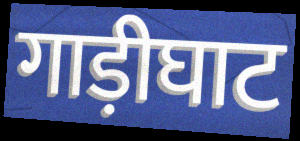
गाड़ीघाट